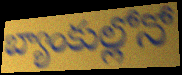
బ్యాంకుల్లోనో